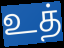
உத்